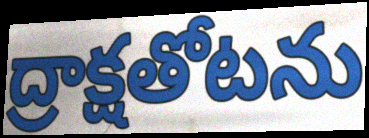
ద్రాక్షతోటను